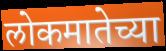
लोकमातेच्या